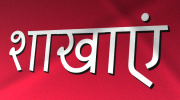
शाखाएं